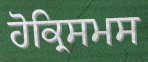
ਹੋਕ੍ਰਿਸਮਸ